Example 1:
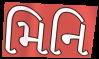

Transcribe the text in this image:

મિનિ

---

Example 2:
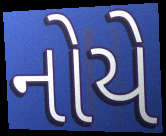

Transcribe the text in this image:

નોયે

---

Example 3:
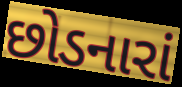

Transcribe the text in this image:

છોડનારાં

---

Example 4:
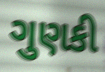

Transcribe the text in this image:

ગુણકી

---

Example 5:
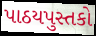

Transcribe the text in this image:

પાઠયપુસ્તકો